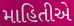
માહિતીએ